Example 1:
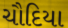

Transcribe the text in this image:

ચૌદિયા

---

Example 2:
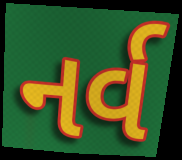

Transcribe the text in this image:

નર્વ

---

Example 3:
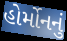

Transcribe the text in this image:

હોર્મોનનું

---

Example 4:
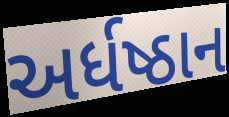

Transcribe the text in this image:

અર્ધષ્ઠાન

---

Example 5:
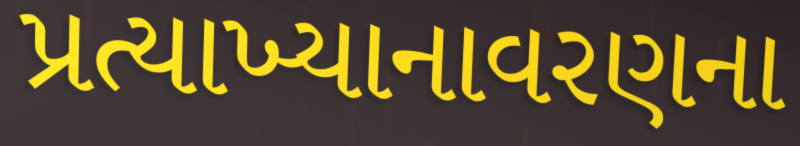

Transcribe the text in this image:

પ્રત્યાખ્યાનાવરણના